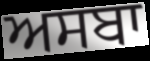
ਅਸਬਾ